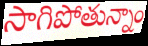
సాగిపోతున్నాం